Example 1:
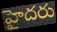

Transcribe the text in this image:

హైదరు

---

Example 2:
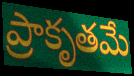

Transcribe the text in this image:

ప్రాకృతమే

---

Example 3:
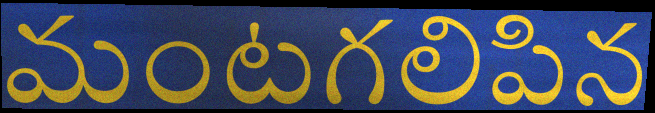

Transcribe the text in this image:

మంటగలిపిన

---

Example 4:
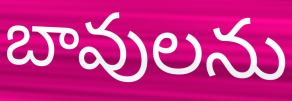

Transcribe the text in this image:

బావులను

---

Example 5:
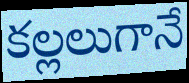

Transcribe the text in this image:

కల్లలుగానే